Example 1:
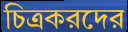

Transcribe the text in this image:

চিত্রকরদের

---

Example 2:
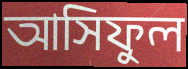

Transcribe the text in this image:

আসিফুল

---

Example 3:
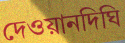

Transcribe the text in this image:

দেওয়ানদিঘি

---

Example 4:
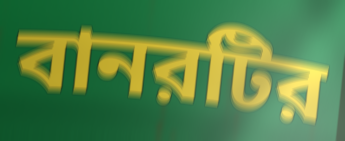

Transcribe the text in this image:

বানরটির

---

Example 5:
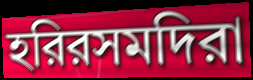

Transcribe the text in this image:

হরিরসমদিরা